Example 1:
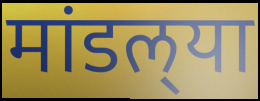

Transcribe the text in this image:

मांडल्या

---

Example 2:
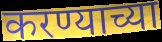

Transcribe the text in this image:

करण्याच्या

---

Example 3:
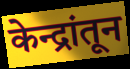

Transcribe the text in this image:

केन्द्रांतून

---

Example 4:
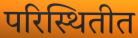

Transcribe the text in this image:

परिस्थितीत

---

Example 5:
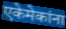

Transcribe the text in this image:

एकेमेकांना